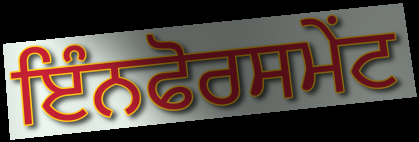
ਇੰਨਫੋਰਸਮੇਂਟ